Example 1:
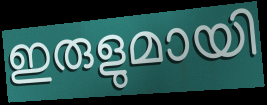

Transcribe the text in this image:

ഇരുളുമായി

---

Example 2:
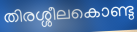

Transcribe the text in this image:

തിരശ്ശീലകൊണ്ടു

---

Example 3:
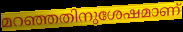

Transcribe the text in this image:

മറഞ്ഞതിനുശേഷമാണ്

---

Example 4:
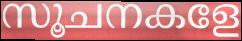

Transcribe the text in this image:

സൂചനകളേ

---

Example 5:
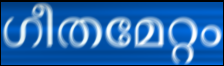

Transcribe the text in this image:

ഗീതമേറ്റം